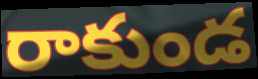
రాకుండ